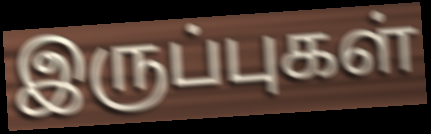
இருப்புகள்